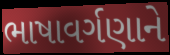
ભાષાવર્ગણાને